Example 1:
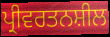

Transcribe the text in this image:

ਪ੍ਰੀਵਰਤਨਸ਼ੀਲ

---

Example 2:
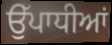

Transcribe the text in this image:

ਉੱਪਾਧੀਆਂ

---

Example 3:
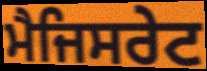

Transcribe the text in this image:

ਮੈਜਿਸਰੇਟ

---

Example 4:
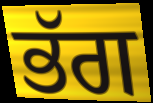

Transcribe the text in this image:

ਭੱਗ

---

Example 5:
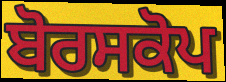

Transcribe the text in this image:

ਬੋਰਸਕੋਪ